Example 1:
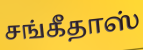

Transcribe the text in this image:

சங்கீதாஸ்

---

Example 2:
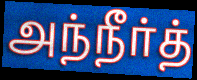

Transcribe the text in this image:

அந்நீர்த்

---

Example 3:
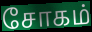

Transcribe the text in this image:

சோகம்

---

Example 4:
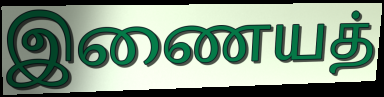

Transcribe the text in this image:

இணையத்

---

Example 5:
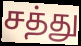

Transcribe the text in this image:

சத்து